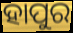
ହାପୁର